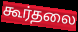
கூர்தலை